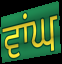
ਵਾਂਘ